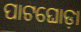
ପାଟଘୋଡ଼ା